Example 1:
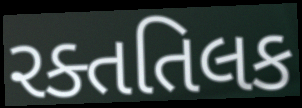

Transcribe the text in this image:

રક્તતિલક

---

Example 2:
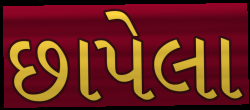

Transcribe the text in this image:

છાપેલા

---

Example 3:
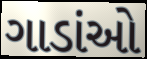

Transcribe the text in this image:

ગાડાંઓ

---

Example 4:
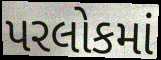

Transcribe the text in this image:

પરલોકમાં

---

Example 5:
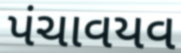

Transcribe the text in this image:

પંચાવયવ